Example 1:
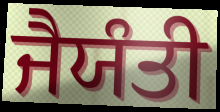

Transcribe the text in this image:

ਜੈਯੰਤੀ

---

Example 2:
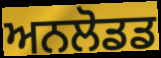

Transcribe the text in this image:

ਅਨਲੋਡਡ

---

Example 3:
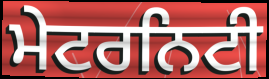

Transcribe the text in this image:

ਮੇਟਰਨਿਟੀ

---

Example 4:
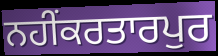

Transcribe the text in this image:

ਨਹੀਂਕਰਤਾਰਪੁਰ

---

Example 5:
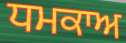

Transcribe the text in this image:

ਧਮਕਾਅ